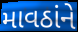
માવઠાંને